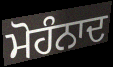
ਮੋਹੰਨਾਦ